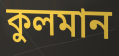
কুলমান